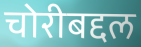
चोरीबद्दल